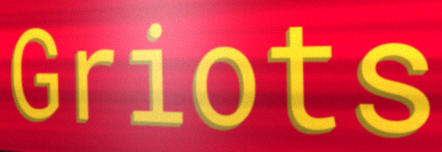
Griots